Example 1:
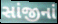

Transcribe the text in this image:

સાંજીનાં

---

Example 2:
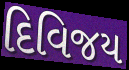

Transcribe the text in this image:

દિવિજય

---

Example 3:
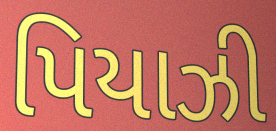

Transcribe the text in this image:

પિયાઝી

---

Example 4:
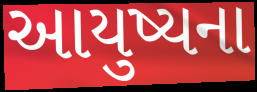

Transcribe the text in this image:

આયુષ્યના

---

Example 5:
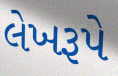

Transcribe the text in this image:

લેખરૂપે